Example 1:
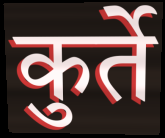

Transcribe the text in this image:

कुर्ते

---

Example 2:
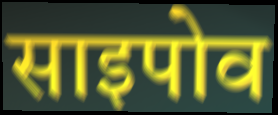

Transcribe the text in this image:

साइपोव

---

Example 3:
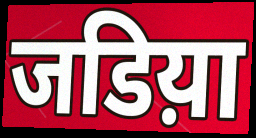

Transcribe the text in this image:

जडिय़ा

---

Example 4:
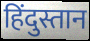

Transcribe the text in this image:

हिंदुस्तान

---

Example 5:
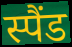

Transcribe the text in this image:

स्पैंड